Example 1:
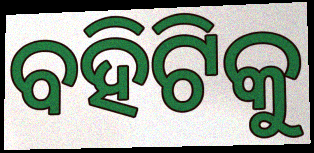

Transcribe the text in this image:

ବହିଟିକୁ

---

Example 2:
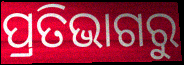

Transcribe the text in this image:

ପ୍ରତିଭାଗରୁ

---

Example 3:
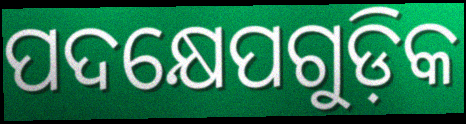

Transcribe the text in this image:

ପଦକ୍ଷେପଗୁଡ଼ିକ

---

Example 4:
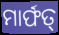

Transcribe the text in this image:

ମାର୍ଫତ୍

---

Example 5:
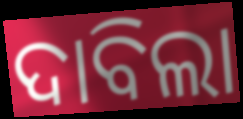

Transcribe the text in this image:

ଦାବିଲା